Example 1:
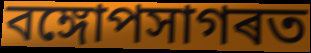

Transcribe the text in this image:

বঙ্গোপসাগৰত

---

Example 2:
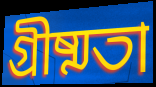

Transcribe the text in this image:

গ্ৰীষ্মতা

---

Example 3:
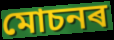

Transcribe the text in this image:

মোচনৰ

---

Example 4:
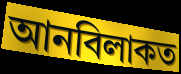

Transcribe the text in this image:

আনবিলাকত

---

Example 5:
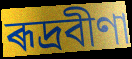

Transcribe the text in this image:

ৰূদ্ৰবীণা